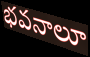
భవనాలూ